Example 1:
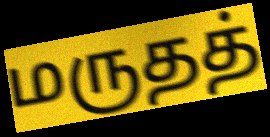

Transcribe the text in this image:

மருதத்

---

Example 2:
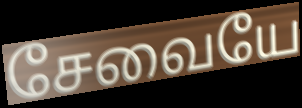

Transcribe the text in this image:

சேவையே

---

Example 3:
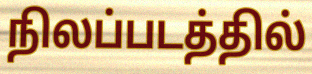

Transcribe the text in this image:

நிலப்படத்தில்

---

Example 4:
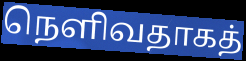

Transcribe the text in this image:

நெளிவதாகத்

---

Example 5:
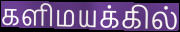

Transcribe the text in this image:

களிமயக்கில்